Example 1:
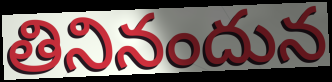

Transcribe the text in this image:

తినినందున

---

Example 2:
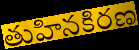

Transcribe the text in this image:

తుహినకిరణ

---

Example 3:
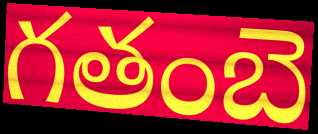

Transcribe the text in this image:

గతంబె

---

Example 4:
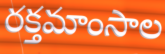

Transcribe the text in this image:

రక్తమాంసాల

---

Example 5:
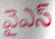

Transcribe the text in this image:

వైఎస్